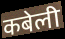
कबेली